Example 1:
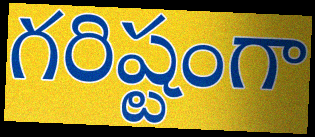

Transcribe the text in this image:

గరిష్టంగా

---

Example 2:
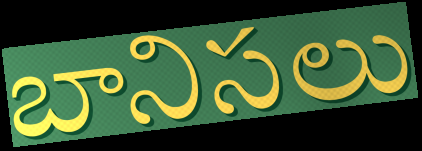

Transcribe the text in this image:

బానిసలు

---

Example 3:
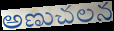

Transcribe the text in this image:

అణుచలన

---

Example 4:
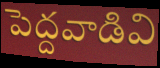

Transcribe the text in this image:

పెద్దవాడివి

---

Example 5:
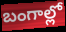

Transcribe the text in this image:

బంగాల్లో